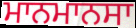
ਮਾਨਮਾਨਸਾ